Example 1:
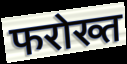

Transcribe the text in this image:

फरोख्त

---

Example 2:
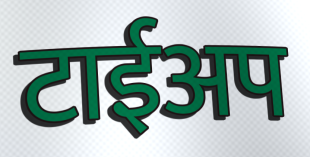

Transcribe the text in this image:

टाईअप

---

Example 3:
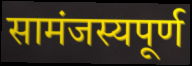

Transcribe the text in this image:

सामंजस्यपूर्ण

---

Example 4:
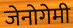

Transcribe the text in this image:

जेनोगेमी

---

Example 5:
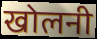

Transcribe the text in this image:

खोलनी